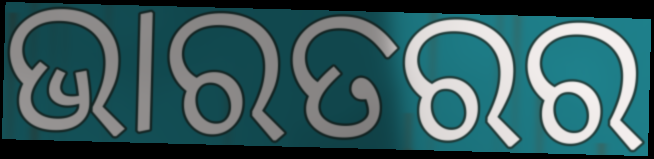
ଭାରତରର